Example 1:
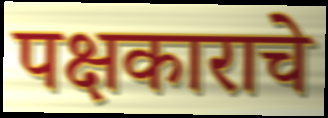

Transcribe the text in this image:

पक्षकाराचे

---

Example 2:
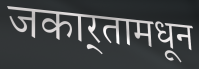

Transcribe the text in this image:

जकार्तामधून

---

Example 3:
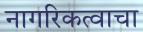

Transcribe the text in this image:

नागरिकत्वाचा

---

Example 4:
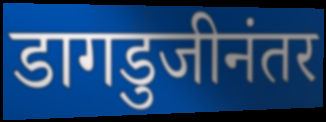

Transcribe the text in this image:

डागडुजीनंतर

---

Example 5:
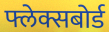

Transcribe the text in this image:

फ्लेक्सबोर्ड